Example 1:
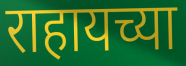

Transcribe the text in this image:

राहायच्या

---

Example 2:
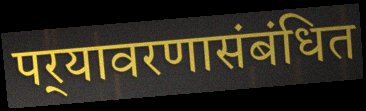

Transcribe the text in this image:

पर्यावरणासंबंधित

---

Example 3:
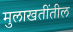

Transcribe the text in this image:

मुलाखतींतील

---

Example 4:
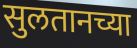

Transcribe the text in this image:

सुलतानच्या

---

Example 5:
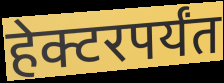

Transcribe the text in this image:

हेक्टरपर्यंत